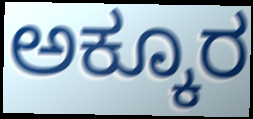
ಅಕ್ಕೂರ